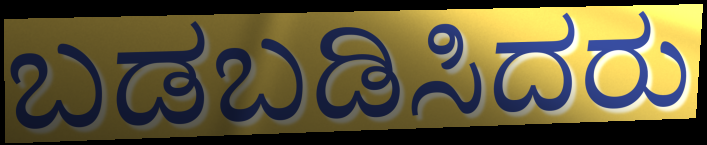
ಬಡಬಡಿಸಿದರು